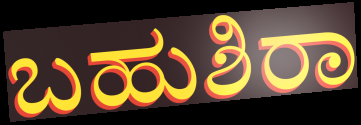
ಬಹುಶಿರಾ